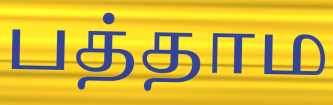
பத்தாம